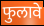
फुलावे